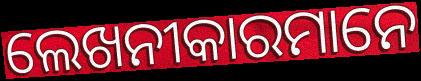
ଲେଖନୀକାରମାନେ